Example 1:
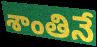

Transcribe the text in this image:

శాంతినే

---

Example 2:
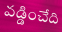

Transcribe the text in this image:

వడ్డించేది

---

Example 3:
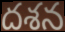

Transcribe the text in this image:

దశన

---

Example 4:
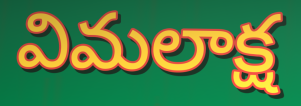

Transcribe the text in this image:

విమలాక్ష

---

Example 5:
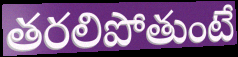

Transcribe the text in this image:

తరలిపోతుంటే